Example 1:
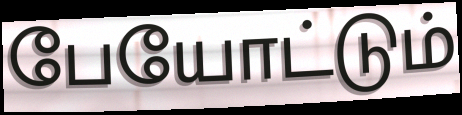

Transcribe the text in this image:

பேயோட்டும்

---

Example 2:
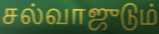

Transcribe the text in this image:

சல்வாஜுடும்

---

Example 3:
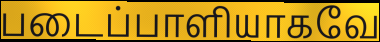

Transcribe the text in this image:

படைப்பாளியாகவே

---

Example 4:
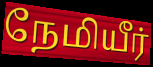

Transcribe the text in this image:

நேமியீர்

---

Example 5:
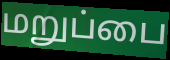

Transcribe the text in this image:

மறுப்பை